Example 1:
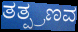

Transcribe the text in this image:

ತತ್ಪ್ರಣವ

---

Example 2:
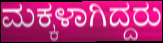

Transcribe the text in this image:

ಮಕ್ಕಳಾಗಿದ್ದರು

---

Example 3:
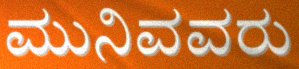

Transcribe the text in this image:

ಮುನಿವವರು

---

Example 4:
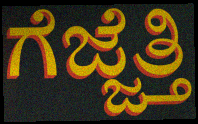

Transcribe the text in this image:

ಗೆಜ್ಜೆತ್ತಿ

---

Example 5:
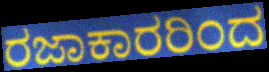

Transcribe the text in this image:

ರಜಾಕಾರರಿಂದ